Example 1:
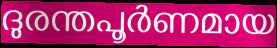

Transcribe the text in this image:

ദുരന്തപൂർണമായ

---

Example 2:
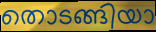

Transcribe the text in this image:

തൊടങ്ങിയാ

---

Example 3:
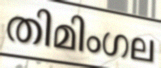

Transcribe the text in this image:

തിമിംഗല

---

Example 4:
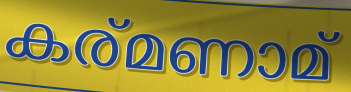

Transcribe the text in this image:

കര്മണാമ്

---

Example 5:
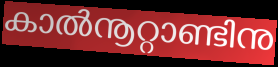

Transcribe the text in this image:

കാൽനൂറ്റാണ്ടിനു